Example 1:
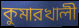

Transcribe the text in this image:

কুমারখালী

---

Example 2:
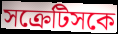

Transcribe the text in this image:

সক্রেটিসকে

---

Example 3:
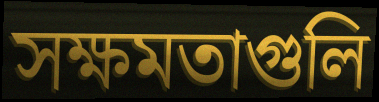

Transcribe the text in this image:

সক্ষমতাগুলি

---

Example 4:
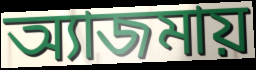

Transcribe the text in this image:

অ্যাজমায়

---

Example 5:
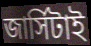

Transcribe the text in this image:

জার্সিটাই